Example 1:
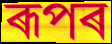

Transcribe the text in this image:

ৰূপৰ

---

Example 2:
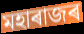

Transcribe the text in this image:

মহাৰাজৰ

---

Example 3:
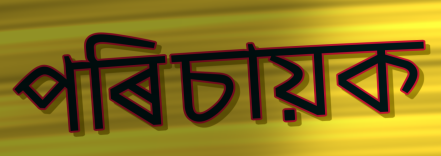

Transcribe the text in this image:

পৰিচায়ক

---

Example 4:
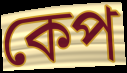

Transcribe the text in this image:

কেপ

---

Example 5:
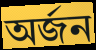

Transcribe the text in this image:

অৰ্জন